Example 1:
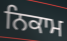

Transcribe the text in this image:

ਨਿਕਾਮ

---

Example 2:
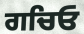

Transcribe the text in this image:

ਗਚਿਓ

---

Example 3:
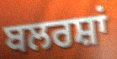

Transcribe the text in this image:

ਬਲਰਸ਼ਾਂ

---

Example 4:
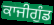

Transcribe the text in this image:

ਕਾਜੀਗੁੰਡ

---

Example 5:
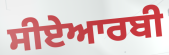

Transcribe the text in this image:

ਸੀਏਆਰਬੀ